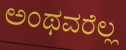
ಅಂಥವರೆಲ್ಲ